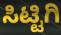
ಸಿಟ್ಟಿಗಿ